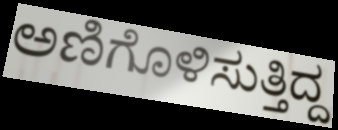
ಅಣಿಗೊಳಿಸುತ್ತಿದ್ದ